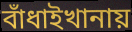
বাঁধাইখানায়